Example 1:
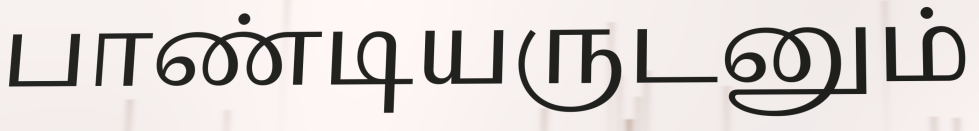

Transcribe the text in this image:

பாண்டியருடனும்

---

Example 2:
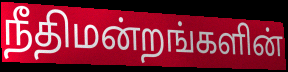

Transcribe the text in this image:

நீதிமன்றங்களின்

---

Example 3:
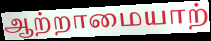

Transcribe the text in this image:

ஆற்றாமையாற்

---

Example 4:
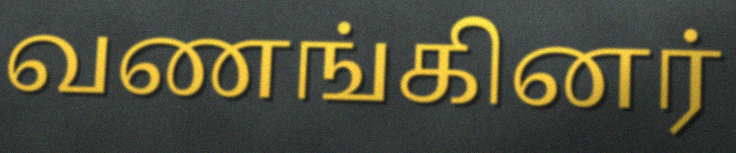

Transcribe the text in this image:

வணங்கினர்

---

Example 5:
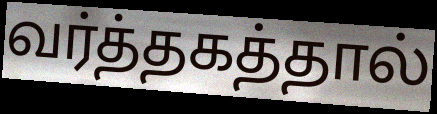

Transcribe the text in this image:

வர்த்தகத்தால்